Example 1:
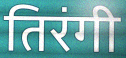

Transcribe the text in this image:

तिरंगी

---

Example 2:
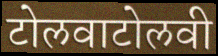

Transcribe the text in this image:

टोलवाटोलवी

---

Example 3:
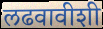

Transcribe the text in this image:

लढवावीशी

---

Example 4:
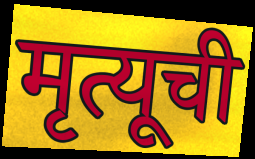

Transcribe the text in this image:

मृत्यूची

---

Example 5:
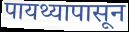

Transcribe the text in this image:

पायथ्यापासून